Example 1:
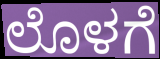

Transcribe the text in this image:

ಲೊಳಗೆ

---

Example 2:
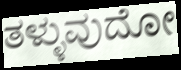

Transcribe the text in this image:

ತಳ್ಳುವುದೋ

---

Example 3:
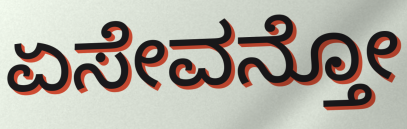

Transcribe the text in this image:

ಏಸೇವನ್ತೋ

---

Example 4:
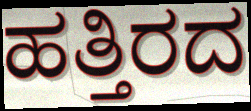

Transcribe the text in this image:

ಹತ್ತಿರದ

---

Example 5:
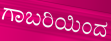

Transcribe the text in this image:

ಗಾಬರಿಯಿಂದ